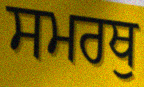
ਸਮਰਥੁ